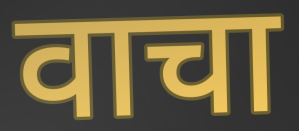
वाचा